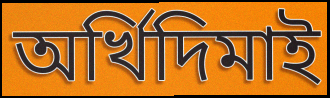
অৰ্খিদিমাই